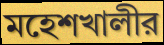
মহেশখালীর